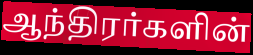
ஆந்திரர்களின்